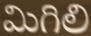
మిగిలి